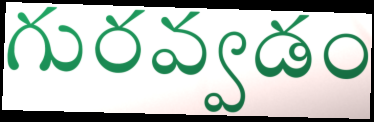
గురవ్వడం